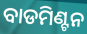
ବାଡମିଣ୍ଟନ